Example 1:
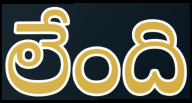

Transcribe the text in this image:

లేంది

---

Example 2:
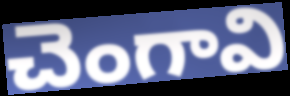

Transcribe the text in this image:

చెంగావి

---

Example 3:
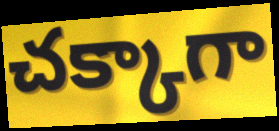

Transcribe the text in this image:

చక్కాగా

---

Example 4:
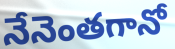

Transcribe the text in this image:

నేనెంతగానో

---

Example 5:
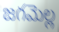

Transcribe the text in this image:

జగమెల్ల